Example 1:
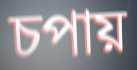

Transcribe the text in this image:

চপায়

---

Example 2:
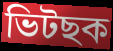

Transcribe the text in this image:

ভিটছক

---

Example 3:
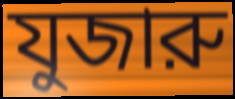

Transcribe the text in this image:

যুজাৰু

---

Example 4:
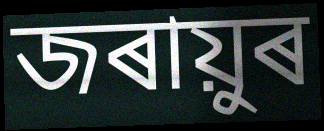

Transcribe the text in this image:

জৰায়ুৰ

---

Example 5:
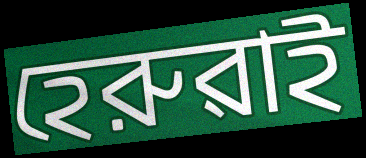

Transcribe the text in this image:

হেৰুৱাই